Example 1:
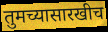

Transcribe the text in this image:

तुमच्यासारखीच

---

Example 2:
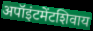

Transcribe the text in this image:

अपॉइंटमेंटशिवाय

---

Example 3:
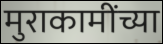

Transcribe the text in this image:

मुराकामींच्या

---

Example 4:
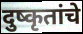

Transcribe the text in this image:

दुष्कृतांचे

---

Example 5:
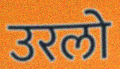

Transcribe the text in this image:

उरलो